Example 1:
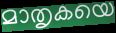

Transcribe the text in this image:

മാതൃകയെ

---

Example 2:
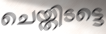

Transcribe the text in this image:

ചെയ്തിടട്ടെ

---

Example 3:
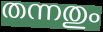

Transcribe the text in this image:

തന്നതും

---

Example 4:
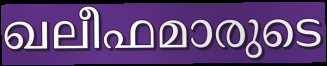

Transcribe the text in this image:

ഖലീഫമാരുടെ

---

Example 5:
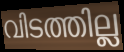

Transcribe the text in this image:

വിടത്തില്ല